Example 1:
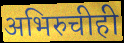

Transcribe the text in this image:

अभिरुचीही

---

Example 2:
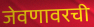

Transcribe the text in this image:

जेवणावरची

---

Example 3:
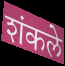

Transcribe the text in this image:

शंकले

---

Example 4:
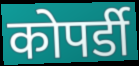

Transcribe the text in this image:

कोपर्डी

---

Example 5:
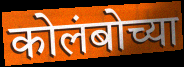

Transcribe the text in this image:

कोलंबोच्या